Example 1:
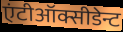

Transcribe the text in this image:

एंटीऑक्सीडेन्ट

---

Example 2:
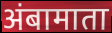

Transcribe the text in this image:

अंबामाता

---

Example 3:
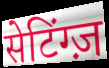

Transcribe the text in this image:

सेटिंग्ज़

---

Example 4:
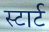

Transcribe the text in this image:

स्टार्ट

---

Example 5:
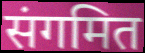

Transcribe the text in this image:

संगमित